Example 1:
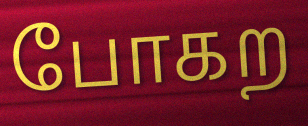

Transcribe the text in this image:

போகற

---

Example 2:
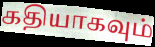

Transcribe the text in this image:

கதியாகவும்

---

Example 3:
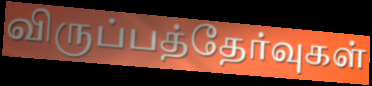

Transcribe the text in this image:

விருப்பத்தேர்வுகள்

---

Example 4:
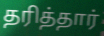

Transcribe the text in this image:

தரித்தார்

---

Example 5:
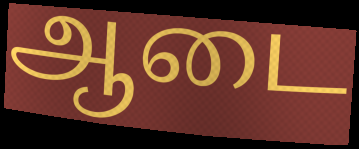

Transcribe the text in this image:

ஆடை